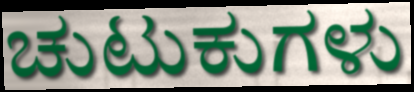
ಚುಟುಕುಗಳು